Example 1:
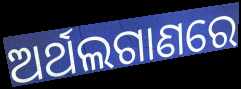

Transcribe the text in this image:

ଅର୍ଥଲଗାଣରେ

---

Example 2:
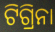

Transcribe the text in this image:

ଟିଗ୍ରିନା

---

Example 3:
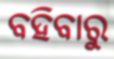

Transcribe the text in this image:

ବହିବାରୁ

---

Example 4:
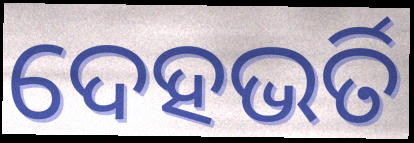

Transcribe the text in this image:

ଦେହଭର୍ତି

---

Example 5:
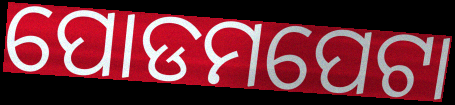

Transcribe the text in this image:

ପୋଡମପେଟା